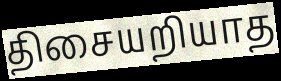
திசையறியாத